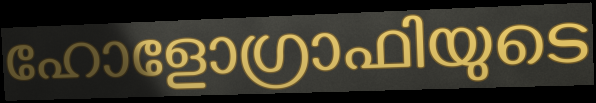
ഹോളോഗ്രാഫിയുടെ